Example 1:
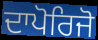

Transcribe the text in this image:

ਦਾਪੋਰਿਜੋ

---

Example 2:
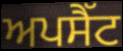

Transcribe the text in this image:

ਅਪਸੈੱਟ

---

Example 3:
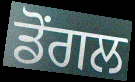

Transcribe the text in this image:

ਡੋਂਗਲ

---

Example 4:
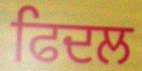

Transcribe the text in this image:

ਫਿਦਲ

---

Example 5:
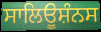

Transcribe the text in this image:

ਸਾਲਿਊਸ਼ੰਨਸ